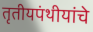
तृतीयपंथीयांचे